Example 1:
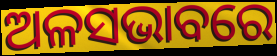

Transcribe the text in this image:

ଅଳସଭାବରେ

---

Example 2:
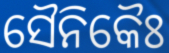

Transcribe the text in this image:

ସୈନିକୈଃ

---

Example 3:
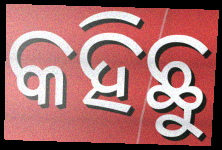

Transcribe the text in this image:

କହିଛୁ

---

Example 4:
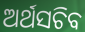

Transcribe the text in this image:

ଅର୍ଥସଚିବ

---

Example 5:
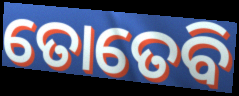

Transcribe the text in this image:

ତୋତେବି